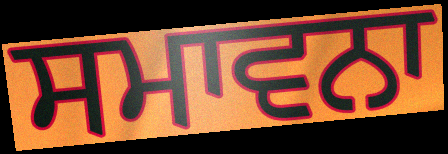
ਸਮਾਵਨਾ